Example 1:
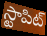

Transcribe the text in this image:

స్టాపిట్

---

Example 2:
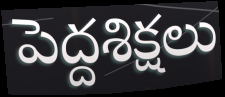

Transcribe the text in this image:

పెద్దశిక్షలు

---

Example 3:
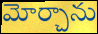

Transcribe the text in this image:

మోర్చాను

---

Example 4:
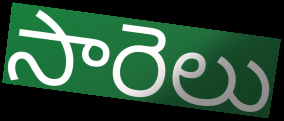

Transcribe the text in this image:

సారెలు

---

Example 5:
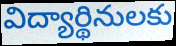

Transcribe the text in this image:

విద్యార్థినులకు